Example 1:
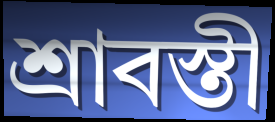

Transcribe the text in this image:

শ্রাবস্তী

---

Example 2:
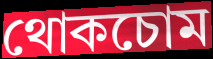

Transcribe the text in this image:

থোকচোম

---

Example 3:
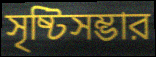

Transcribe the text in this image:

সৃষ্টিসম্ভার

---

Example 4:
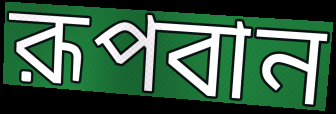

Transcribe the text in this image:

রূপবান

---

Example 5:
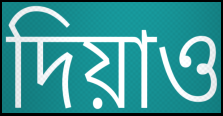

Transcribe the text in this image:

দিয়াও